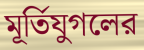
মূর্তিযুগলের